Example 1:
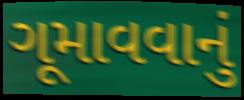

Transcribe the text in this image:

ગૂમાવવાનું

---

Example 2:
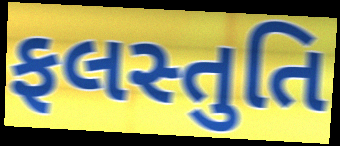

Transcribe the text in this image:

ફલસ્તુતિ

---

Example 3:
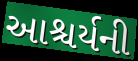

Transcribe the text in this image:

આશ્ચર્યની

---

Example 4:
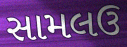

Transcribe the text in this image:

સામલઉ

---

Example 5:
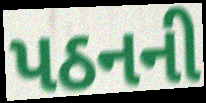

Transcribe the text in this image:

પઠનની